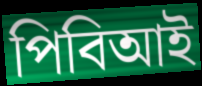
পিবিআই